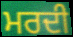
ਮਰਦੀ